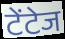
टेंटेज